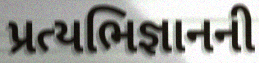
પ્રત્યભિજ્ઞાનની